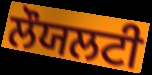
ਲੌਯਲਟੀ